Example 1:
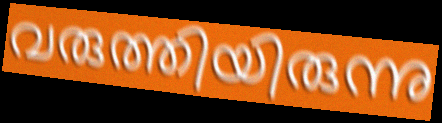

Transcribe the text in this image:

വരുത്തിയിരുന്നു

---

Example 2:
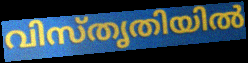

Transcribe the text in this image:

വിസ്തൃതിയിൽ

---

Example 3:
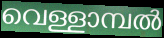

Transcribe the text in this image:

വെള്ളാമ്പൽ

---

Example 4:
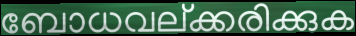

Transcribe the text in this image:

ബോധവല്ക്കരിക്കുക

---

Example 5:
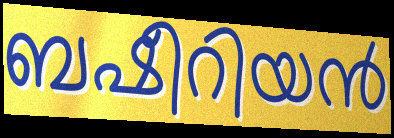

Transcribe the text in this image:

ബഷീറിയൻ